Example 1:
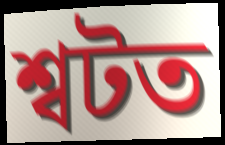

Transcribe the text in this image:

শ্বটত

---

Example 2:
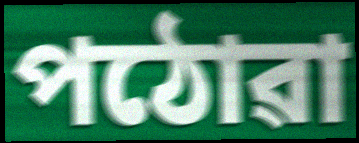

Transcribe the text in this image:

পঠোৱা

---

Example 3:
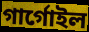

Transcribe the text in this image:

গাৰ্গোইল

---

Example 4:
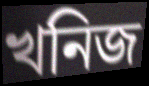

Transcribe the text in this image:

খনিজ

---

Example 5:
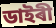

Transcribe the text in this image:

ডাইৰী